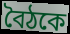
বৈঠকে